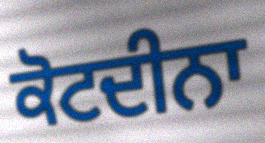
ਕੋਟਦੀਨਾ